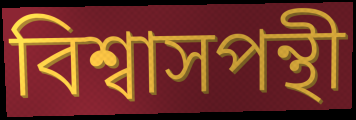
বিশ্বাসপন্থী